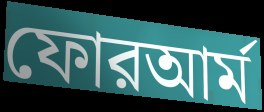
ফোরআর্ম